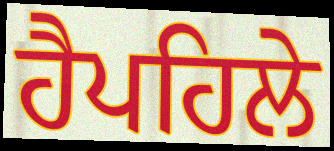
ਹੈਪਹਿਲੇ